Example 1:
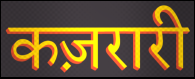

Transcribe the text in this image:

कज़रारी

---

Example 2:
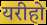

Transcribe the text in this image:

यरीहो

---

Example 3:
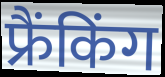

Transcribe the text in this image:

फ्रैंकिंग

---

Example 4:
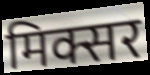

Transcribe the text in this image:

मिक्सर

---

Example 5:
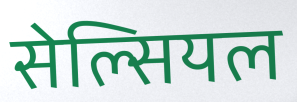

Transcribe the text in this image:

सेल्सियल